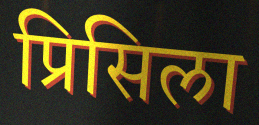
प्रिसिला